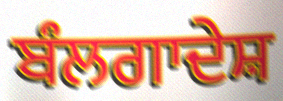
ਬੰਲਗਾਦੇਸ਼